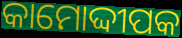
କାମୋଦ୍ଦୀପକ